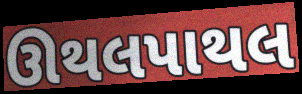
ઊથલપાથલ